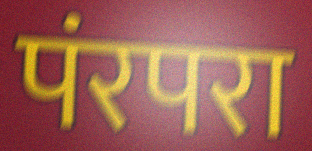
पंरपरा